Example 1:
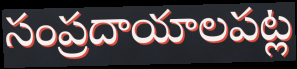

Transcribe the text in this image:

సంప్రదాయాలపట్ల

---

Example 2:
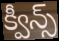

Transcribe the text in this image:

క్వీన్స్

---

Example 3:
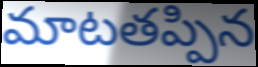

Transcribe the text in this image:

మాటతప్పిన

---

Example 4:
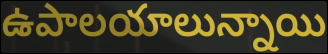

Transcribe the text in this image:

ఉపాలయాలున్నాయి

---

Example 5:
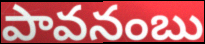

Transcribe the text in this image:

పావనంబు